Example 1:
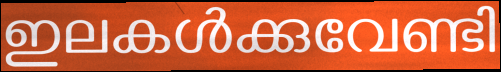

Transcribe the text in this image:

ഇലകൾക്കുവേണ്ടി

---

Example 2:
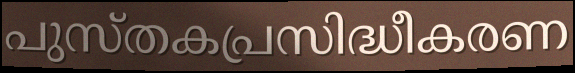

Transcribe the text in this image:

പുസ്തകപ്രസിദ്ധീകരണ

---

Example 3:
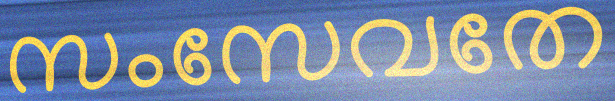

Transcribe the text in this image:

സംസേവതേ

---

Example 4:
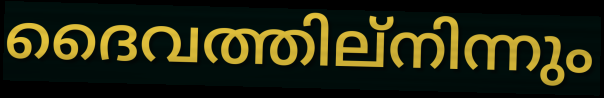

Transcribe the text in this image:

ദൈവത്തില്നിന്നും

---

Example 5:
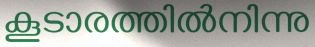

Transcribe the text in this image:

കൂടാരത്തിൽനിന്നു